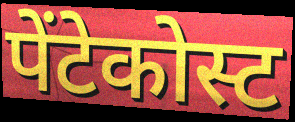
पेंटेकोस्ट